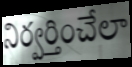
నిర్వర్తించేలా